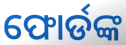
ଫୋର୍ଡଙ୍କ